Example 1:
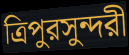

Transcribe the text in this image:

ত্রিপুরসুন্দরী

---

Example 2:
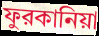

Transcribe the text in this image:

ফুরকানিয়া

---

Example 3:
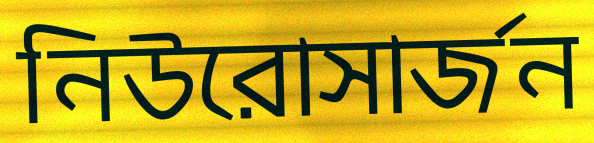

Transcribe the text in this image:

নিউরোসার্জন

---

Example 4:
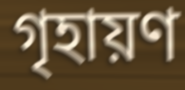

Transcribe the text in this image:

গৃহায়ণ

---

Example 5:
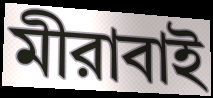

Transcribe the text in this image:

মীরাবাই